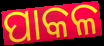
ପାକଳ